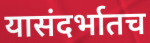
यासंदर्भातच